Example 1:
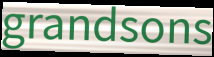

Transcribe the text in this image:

grandsons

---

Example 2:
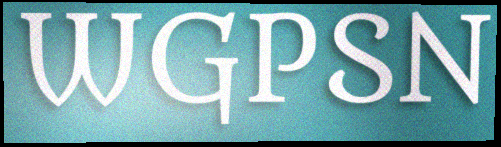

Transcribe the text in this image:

WGPSN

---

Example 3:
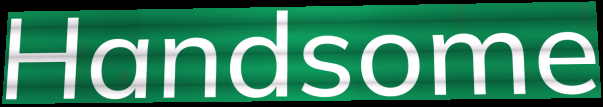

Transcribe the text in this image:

Handsome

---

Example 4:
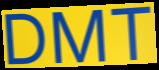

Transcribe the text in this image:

DMT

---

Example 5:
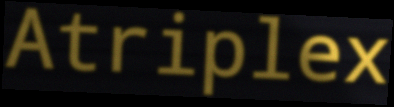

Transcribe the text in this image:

Atriplex